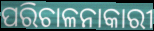
ପରିଚାଳନାକାରୀ